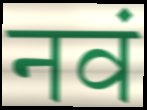
नवं